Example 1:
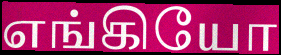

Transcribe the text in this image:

எங்கியோ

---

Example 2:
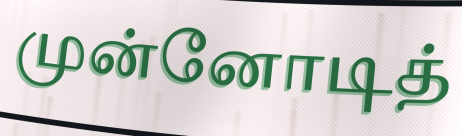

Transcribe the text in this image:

முன்னோடித்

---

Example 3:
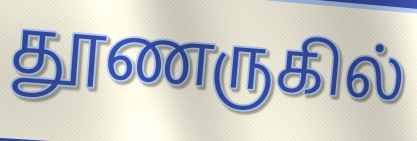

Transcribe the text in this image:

தூணருகில்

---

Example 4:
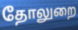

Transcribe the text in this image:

தோலுறை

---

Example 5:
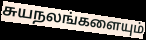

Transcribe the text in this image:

சுயநலங்களையும்